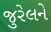
જુરેલને